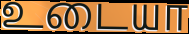
உடையா